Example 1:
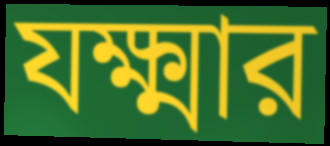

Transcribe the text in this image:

যক্ষ্মার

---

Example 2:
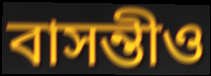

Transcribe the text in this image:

বাসন্তীও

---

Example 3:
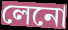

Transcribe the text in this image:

লেনো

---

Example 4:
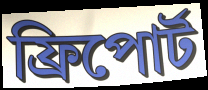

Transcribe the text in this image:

ফ্রিপোর্ট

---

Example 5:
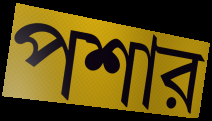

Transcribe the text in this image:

পশার